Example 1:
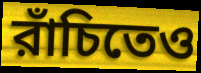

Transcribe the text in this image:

রাঁচিতেও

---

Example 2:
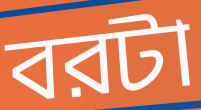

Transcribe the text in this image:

বরটা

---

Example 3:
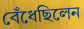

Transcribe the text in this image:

বেঁধেছিলেন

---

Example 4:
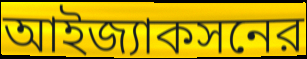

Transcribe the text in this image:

আইজ্যাকসনের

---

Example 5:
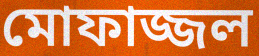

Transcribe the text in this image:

মোফাজ্জল